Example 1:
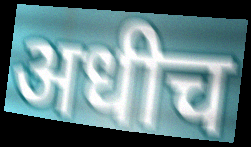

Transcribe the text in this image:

अधीच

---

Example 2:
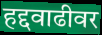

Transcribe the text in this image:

हद्दवाढीवर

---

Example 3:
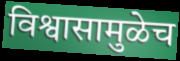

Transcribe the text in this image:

विश्वासामुळेच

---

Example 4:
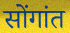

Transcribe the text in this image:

सोंगांत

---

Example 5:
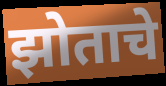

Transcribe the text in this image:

झोताचे